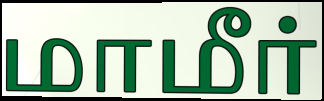
மாமீர்